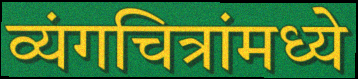
व्यंगचित्रांमध्ये